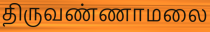
திருவண்ணாமலை